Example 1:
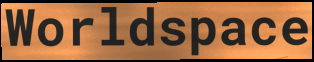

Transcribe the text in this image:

Worldspace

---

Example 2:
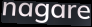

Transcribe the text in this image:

nagare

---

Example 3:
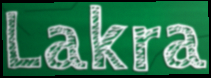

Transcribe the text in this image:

Lakra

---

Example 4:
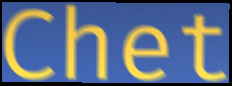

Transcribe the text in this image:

Chet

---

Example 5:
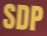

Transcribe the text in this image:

SDP